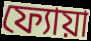
ফ্যোয়া